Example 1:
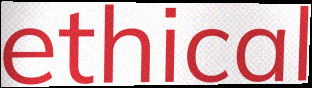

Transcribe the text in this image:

ethical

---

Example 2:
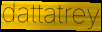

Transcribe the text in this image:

dattatrey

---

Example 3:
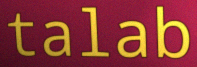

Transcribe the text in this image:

talab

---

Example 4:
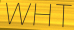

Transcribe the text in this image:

WHT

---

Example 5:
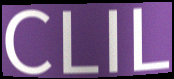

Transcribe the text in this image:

CLIL